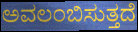
ಅವಲಂಬಿಸುತ್ತದೆ